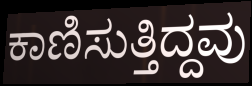
ಕಾಣಿಸುತ್ತಿದ್ದವು